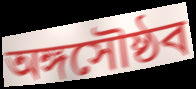
অঙ্গসৌষ্ঠব